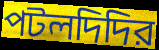
পটলদিদির